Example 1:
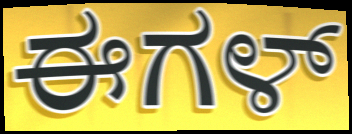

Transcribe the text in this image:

ಈಗಳ್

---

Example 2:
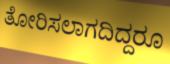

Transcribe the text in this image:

ತೋರಿಸಲಾಗದಿದ್ದರೂ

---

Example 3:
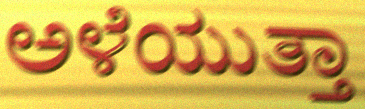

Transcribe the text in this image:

ಅಳೆಯುತ್ತಾ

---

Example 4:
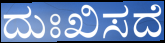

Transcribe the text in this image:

ದುಃಖಿಸದೆ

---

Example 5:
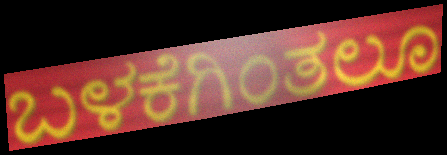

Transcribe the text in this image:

ಬಳಕೆಗಿಂತಲೂ